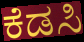
ಕೆಡಸಿ